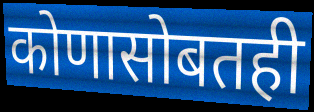
कोणासोबतही